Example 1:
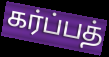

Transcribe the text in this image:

கர்ப்பத்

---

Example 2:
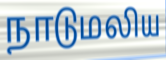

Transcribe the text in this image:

நாடுமலிய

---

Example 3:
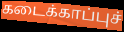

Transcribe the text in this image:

கடைக்காப்புச்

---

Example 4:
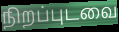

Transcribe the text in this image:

நிறப்புடவை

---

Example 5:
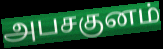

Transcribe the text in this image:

அபசகுனம்